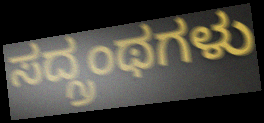
ಸದ್ಗ್ರಂಥಗಳು